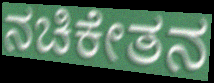
ನಚಿಕೇತನ